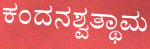
ಕಂದನಶ್ವತ್ಥಾಮ